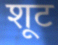
शूट